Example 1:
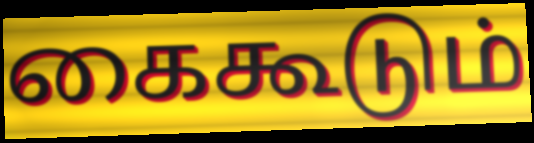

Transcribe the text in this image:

கைகூடும்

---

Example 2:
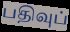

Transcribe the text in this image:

பதிவுப்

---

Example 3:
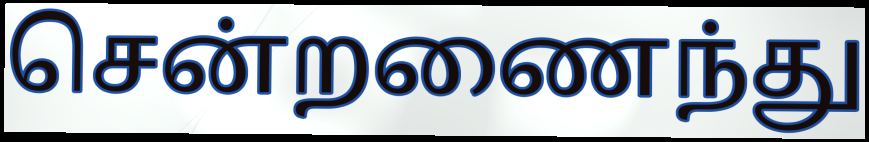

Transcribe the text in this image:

சென்றணைந்து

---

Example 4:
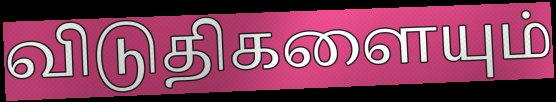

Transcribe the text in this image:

விடுதிகளையும்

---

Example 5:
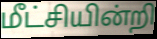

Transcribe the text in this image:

மீட்சியின்றி